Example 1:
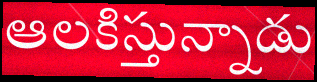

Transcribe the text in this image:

ఆలకిస్తున్నాడు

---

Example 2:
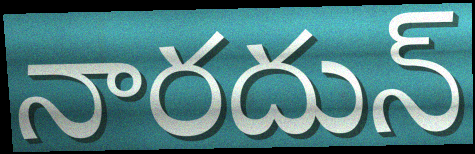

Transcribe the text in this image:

నారదున్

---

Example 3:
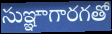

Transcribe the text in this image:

సుఞ్ఞాగారగతో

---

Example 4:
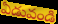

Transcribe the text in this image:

ఏడువండి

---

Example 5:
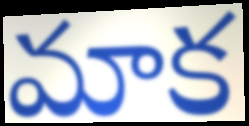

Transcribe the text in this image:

మాక